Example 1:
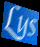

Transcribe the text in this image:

Lys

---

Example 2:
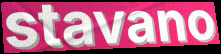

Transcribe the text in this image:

stavano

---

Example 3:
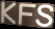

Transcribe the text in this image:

KFS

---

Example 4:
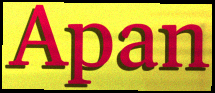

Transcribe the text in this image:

Apan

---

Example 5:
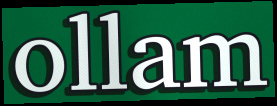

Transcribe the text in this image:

ollam